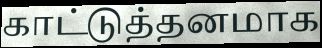
காட்டுத்தனமாக